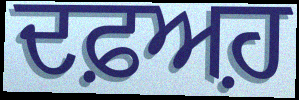
ਦਫ਼ਅ਼ਹ